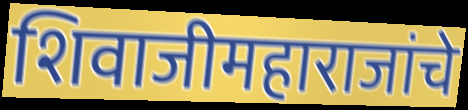
शिवाजीमहाराजांचे